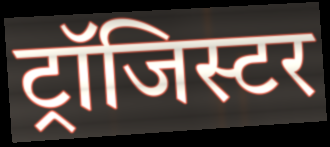
ट्रॉजिस्टर